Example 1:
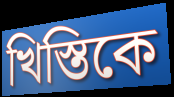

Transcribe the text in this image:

খিস্তিকে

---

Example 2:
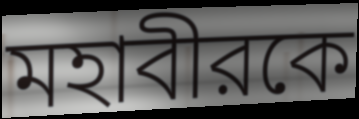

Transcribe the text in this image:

মহাবীরকে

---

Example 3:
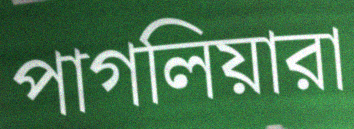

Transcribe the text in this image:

পাগলিয়ারা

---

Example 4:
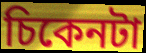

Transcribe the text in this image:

চিকেনটা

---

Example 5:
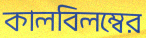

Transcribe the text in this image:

কালবিলম্বের